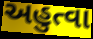
અહુત્વા